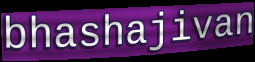
bhashajivan